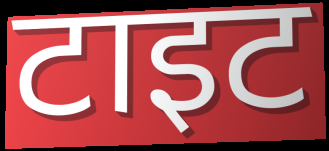
टाइट